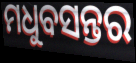
ମଧୁବସନ୍ତର